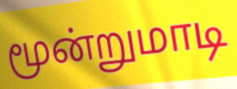
மூன்றுமாடி